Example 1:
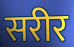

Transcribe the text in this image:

सरीर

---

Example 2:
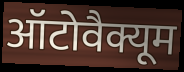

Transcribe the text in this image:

ऑटोवैक्यूम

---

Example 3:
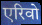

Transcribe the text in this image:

एरिवो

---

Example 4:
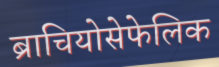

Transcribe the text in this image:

ब्राचियोसेफेलिक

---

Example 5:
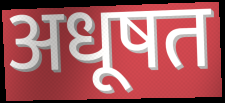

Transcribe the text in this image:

अधूषत